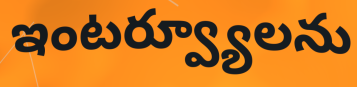
ఇంటర్వ్యూలను